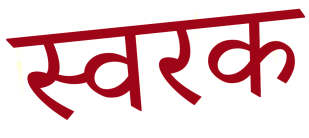
स्वरक